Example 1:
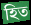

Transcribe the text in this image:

হিত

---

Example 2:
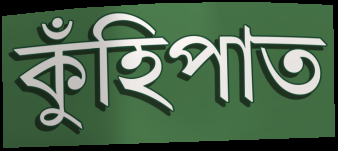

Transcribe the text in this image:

কুঁহিপাত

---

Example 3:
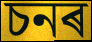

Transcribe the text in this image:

চনৰ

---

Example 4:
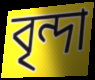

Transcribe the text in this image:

বৃন্দা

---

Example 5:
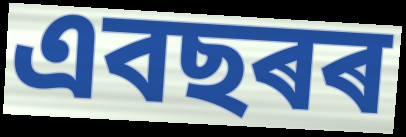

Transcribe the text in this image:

এবছৰৰ